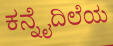
ಕನ್ನೈದಿಲೆಯ